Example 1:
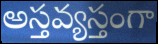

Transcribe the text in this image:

అస్తవ్యస్తంగా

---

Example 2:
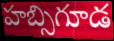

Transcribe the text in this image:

హబ్సిగూడ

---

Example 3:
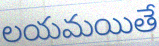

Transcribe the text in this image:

లయమయితే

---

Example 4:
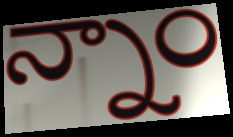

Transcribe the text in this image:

న్నాం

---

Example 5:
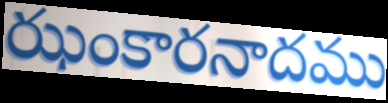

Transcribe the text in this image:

ఝంకారనాదము